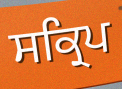
ਸਕ੍ਰਿਪ